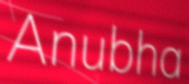
Anubha